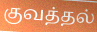
குவத்தல்